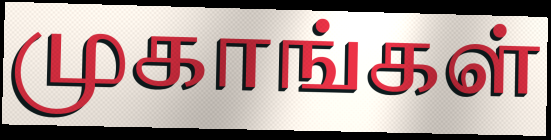
முகாங்கள்